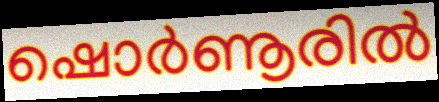
ഷൊർണൂരിൽ